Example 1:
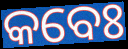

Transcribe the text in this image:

କବେଃ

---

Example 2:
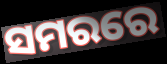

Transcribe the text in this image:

ସମରରେ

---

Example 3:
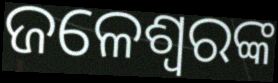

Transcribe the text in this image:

ଜଳେଶ୍ଵରଙ୍କ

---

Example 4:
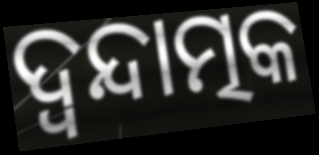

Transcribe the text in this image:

ଦ୍ଵନ୍ଦାତ୍ମକ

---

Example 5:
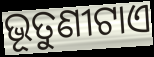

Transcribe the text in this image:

ଭୂତୁଣୀଟାଏ